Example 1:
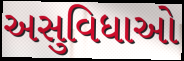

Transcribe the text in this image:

અસુવિધાઓ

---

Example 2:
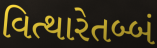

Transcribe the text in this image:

વિત્થારેતબ્બં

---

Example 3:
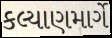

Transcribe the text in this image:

કલ્યાણમાર્ગે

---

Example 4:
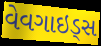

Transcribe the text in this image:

વેવગાઇડ્સ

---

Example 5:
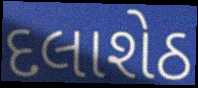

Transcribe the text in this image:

દલાશેઠ